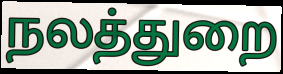
நலத்துறை